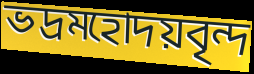
ভদ্রমহোদয়বৃন্দ